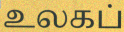
உலகப்